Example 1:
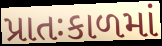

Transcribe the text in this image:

પ્રાતઃકાળમાં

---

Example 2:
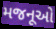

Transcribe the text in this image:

મજનૂઓ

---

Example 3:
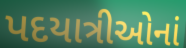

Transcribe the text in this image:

પદયાત્રીઓનાં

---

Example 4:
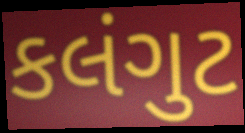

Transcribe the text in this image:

કલંગુટ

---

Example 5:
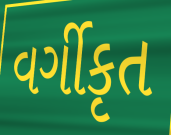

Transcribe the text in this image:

વર્ગીકૃત